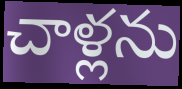
చాళ్లను